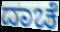
ದಾಚೆ